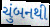
ચુંબનથી